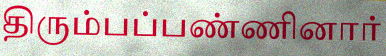
திரும்பப்பண்ணினார்